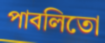
পাবলিতো